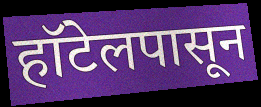
हॉटेलपासून